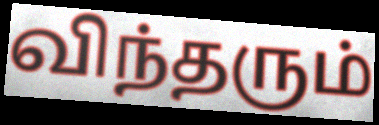
விந்தரும்